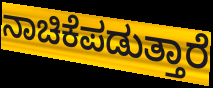
ನಾಚಿಕೆಪಡುತ್ತಾರೆ